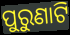
ପୁରୁଣାଟି